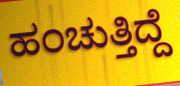
ಹಂಚುತ್ತಿದ್ದೆ